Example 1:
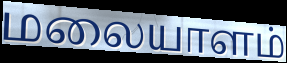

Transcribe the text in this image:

மலையாளம்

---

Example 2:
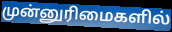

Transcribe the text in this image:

முன்னுரிமைகளில்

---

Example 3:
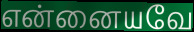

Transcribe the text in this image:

என்னையவே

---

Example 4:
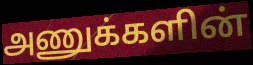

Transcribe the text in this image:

அணுக்களின்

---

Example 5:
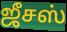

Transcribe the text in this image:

ஜீசஸ்